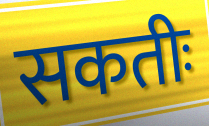
सकतीः